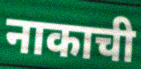
नाकाची